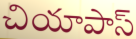
చియాపాస్